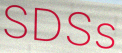
SDSs